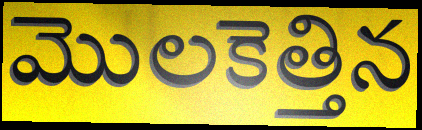
మొలకెత్తిన